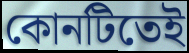
কোনটিতেই